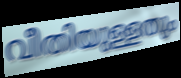
വീതിയുള്ളതും